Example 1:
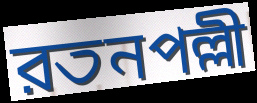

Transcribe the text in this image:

রতনপল্লী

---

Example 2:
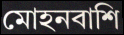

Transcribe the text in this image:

মোহনবাশি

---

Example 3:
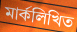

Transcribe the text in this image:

মার্কলিখিত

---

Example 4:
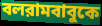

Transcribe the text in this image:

বলরামবাবুকে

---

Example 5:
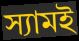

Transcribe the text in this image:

স্যামই